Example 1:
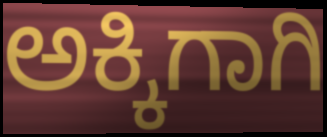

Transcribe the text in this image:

ಅಕ್ಕಿಗಾಗಿ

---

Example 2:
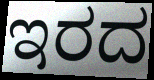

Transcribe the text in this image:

ಇರದ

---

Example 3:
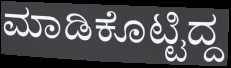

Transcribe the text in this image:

ಮಾಡಿಕೊಟ್ಟಿದ್ದ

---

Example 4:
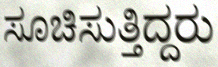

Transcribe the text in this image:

ಸೂಚಿಸುತ್ತಿದ್ದರು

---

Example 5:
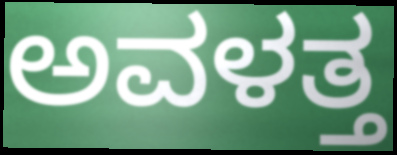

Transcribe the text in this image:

ಅವಳತ್ತ